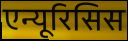
एन्यूरिसिस